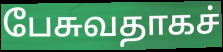
பேசுவதாகச்